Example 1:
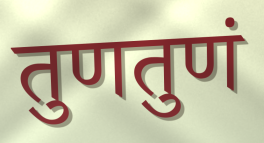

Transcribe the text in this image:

तुणतुणं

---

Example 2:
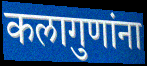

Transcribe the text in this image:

कलागुणांना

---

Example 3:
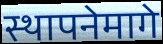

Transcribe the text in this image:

स्थापनेमागे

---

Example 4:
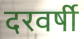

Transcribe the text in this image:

दरवर्षी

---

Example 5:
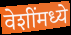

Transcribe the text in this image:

वेशींमध्ये